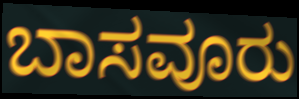
ಬಾಸವೂರು